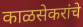
काळसेकरांचे